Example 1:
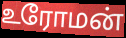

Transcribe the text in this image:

உரோமன்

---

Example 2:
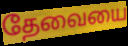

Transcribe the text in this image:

தேவையை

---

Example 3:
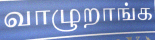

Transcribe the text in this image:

வாழுறாங்க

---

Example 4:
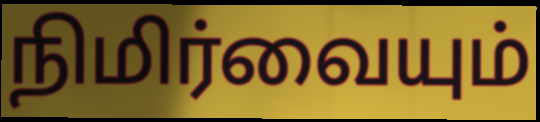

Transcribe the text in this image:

நிமிர்வையும்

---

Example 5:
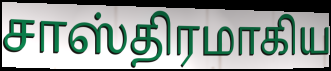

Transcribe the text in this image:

சாஸ்திரமாகிய